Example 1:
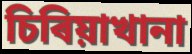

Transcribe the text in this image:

চিৰিয়াখানা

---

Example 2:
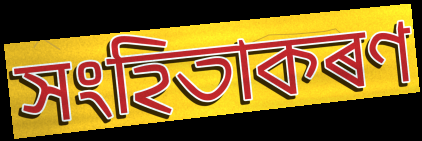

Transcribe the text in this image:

সংহিতাকৰণ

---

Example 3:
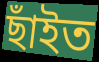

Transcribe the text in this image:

ছাঁইত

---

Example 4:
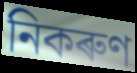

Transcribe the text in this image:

নিকৰুণ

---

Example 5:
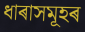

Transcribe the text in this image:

ধাৰাসমূহৰ